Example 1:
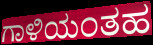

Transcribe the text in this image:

ಗಾಳಿಯಂತಹ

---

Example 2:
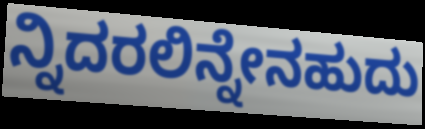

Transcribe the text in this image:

ನ್ನಿದರಲಿನ್ನೇನಹುದು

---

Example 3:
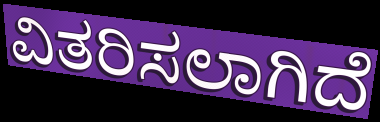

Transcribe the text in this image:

ವಿತರಿಸಲಾಗಿದೆ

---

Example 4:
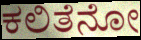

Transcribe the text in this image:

ಕಲಿತೆನೋ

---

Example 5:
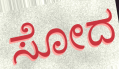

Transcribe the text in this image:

ಸೋದ